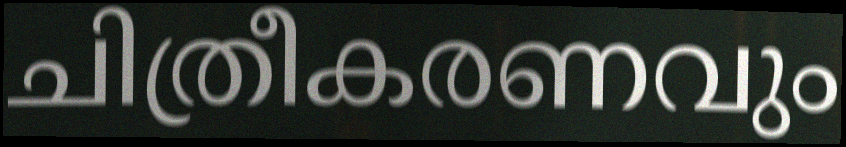
ചിത്രീകരണവും